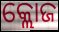
କ୍ଲୋଜ